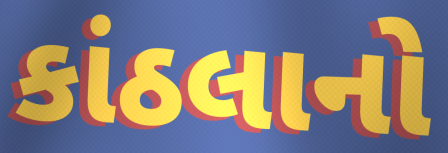
કાંઠલાનો